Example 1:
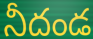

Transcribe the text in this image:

నీదండ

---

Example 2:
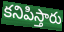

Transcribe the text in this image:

కనిపిస్తారు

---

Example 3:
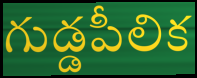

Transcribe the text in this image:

గుడ్డపీలిక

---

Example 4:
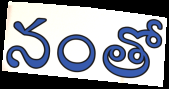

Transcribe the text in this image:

నంతో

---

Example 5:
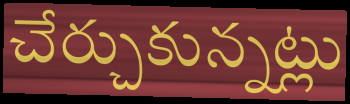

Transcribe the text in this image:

చేర్చుకున్నట్లు